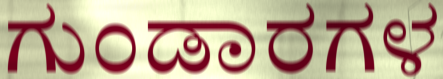
ಗುಂಡಾರಗಳ